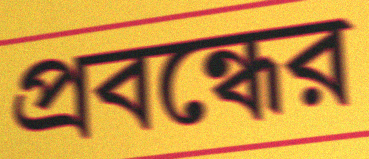
প্রবন্ধের